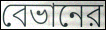
বেভানের